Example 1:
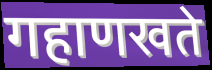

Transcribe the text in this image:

गहाणखते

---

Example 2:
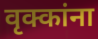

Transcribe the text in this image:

वृक्कांना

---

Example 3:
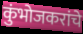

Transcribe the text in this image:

कुंभोजकरांचे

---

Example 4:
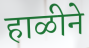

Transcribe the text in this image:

हाळीने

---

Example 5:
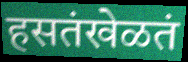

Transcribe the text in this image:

हसतंखेळतं